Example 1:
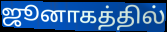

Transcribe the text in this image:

ஜூனாகத்தில்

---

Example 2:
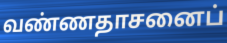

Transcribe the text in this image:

வண்ணதாசனைப்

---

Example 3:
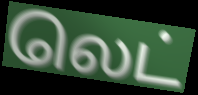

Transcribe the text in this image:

லெட்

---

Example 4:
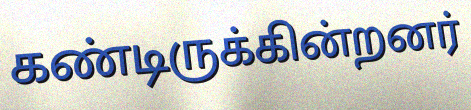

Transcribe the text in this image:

கண்டிருக்கின்றனர்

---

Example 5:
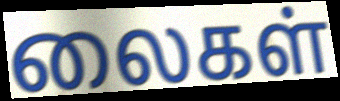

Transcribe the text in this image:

லைகள்